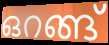
ഒറങ്ങ്